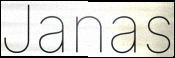
Janas